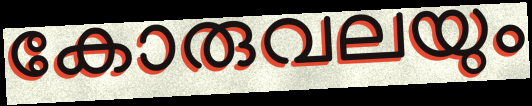
കോരുവലയും